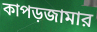
কাপড়জামার